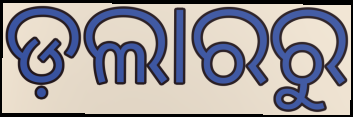
ଡ଼ଲାରରୁ